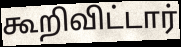
கூறிவிட்டார்